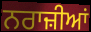
ਨਰਾਜ਼ੀਆਂ